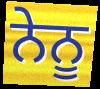
ਨੇਨੂ